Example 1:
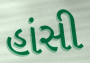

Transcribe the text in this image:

હાંસી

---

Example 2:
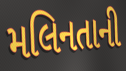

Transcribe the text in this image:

મલિનતાની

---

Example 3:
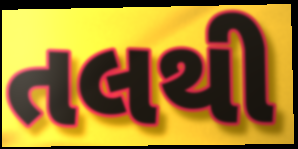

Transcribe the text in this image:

તલથી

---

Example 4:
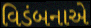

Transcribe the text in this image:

વિડંબનાએ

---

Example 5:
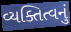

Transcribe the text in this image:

વ્યક્તિત્વનું